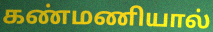
கண்மணியால்